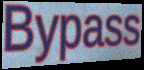
Bypass